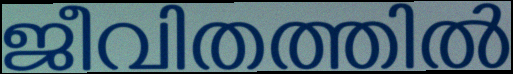
ജീവിതത്തിൽ